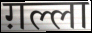
ग़ल्ला